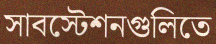
সাবস্টেশনগুলিতে